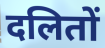
दलितों